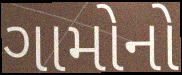
ગામોનો